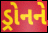
ડ્રોનને